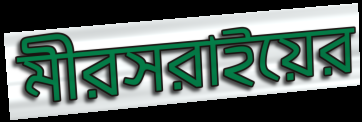
মীরসরাইয়ের